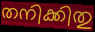
തനിക്കിതു